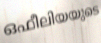
ഒഫീലിയയുടെ